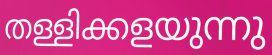
തള്ളിക്കളയുന്നു